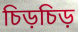
চিড়চিড়